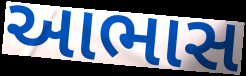
આભાસ